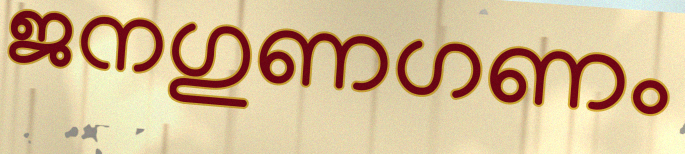
ജനഗുണഗണം